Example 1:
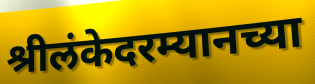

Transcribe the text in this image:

श्रीलंकेदरम्यानच्या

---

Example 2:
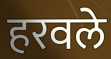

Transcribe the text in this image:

हरवले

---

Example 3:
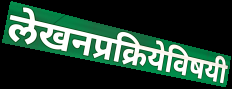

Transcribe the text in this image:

लेखनप्रक्रियेविषयी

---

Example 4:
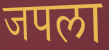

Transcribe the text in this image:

जपला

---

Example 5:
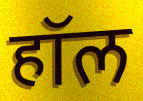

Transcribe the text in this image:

हॉल